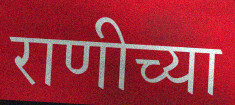
राणीच्या